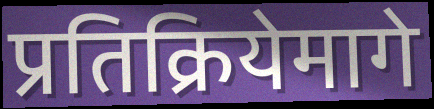
प्रतिक्रियेमागे